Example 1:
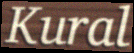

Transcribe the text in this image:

Kural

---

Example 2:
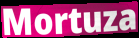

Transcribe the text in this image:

Mortuza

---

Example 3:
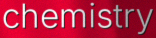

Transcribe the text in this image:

chemistry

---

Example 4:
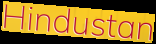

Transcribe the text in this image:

Hindustan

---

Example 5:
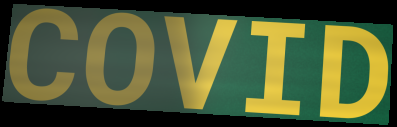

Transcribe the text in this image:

COVID